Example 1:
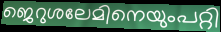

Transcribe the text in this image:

ജെറുശലേമിനെയുംപറ്റി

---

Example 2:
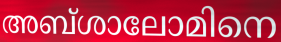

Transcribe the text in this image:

അബ്ശാലോമിനെ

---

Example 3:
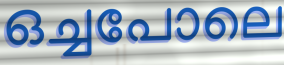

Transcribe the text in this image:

ഒച്ചപോലെ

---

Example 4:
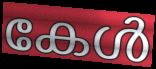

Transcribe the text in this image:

കേൾ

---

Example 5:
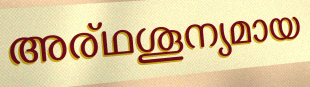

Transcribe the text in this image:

അര്ഥശൂന്യമായ